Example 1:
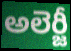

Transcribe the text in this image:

అలెర్జీ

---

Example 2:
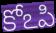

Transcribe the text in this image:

కోఽపి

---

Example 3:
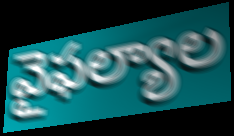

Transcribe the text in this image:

వైఫల్యాల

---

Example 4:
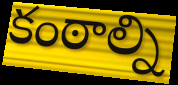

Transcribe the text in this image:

కంఠాల్ని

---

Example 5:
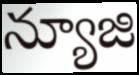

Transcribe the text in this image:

న్యూజి